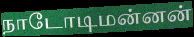
நாடோடிமன்னன்